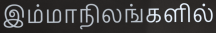
இம்மாநிலங்களில்